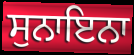
ਸੁਨਾਇਨਾ